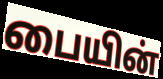
பையின்